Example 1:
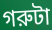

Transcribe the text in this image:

গরুটা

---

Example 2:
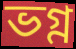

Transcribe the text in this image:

ভগ্ন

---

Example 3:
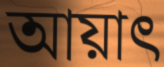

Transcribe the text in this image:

আয়াৎ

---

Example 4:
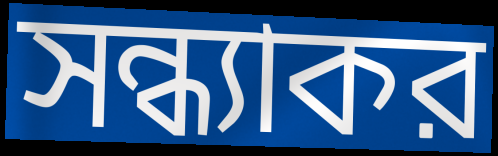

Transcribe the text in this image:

সন্ধ্যাকর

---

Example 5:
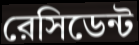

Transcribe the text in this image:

রেসিডেন্ট